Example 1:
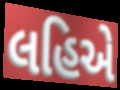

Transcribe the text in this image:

લહિએ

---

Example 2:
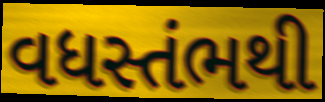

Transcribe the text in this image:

વધસ્તંભથી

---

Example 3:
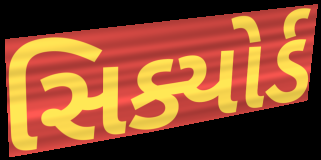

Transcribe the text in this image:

સિક્યોર્ડ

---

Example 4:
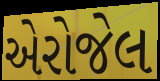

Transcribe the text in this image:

એરોજેલ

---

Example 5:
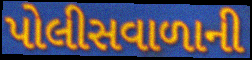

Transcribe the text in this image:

પોલીસવાળાની